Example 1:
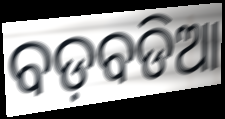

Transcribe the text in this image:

ବଡ଼ବଡିଆ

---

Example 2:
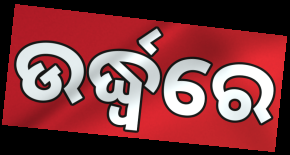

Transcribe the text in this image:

ଉର୍ଦ୍ଧ୍ଵରେ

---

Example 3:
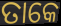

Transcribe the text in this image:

ତାକେ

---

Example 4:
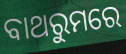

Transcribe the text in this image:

ବାଥରୁମରେ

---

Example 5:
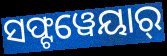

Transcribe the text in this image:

ସଫ୍ଟୱେୟାର୍